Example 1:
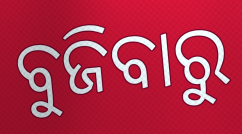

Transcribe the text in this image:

ବୁଜିବାରୁ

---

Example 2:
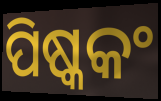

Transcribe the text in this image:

ପିଷ୍କକଂ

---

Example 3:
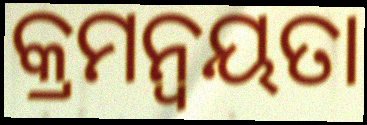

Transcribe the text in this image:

କ୍ରମନ୍ବୟତା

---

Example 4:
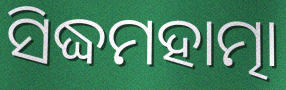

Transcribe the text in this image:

ସିଦ୍ଧମହାତ୍ମା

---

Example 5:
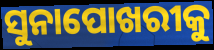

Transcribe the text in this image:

ସୁନାପୋଖରୀକୁ